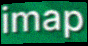
imap